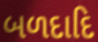
બળદાદિ